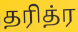
தரித்ர